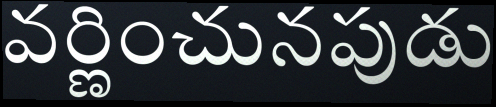
వర్ణించునపుడు